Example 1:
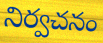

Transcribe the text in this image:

నిర్వచనం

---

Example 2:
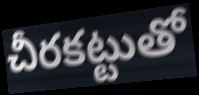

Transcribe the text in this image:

చీరకట్టుతో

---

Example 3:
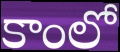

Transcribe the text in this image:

కాంలో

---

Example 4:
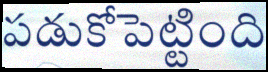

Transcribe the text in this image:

పడుకోపెట్టింది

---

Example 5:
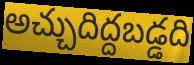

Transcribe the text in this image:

అచ్చుదిద్దబడ్డది